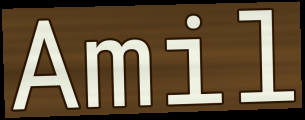
Amil